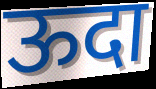
ऊदा